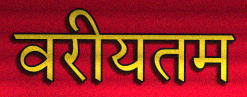
वरीयतम